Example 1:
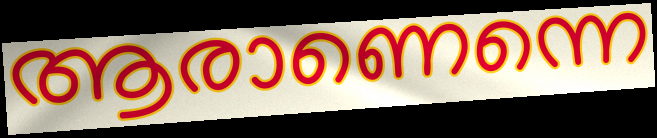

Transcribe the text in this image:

ആരാണെന്നെ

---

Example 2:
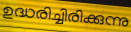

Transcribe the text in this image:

ഉദ്ധരിച്ചിരിക്കുന്നു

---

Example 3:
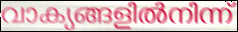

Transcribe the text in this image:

വാക്യങ്ങളിൽനിന്ന്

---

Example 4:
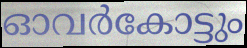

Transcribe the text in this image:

ഓവർകോട്ടും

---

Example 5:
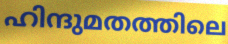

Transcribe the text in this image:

ഹിന്ദുമതത്തിലെ